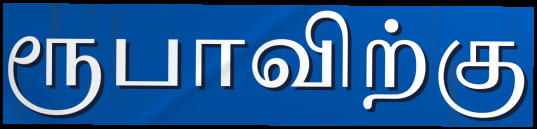
ரூபாவிற்கு